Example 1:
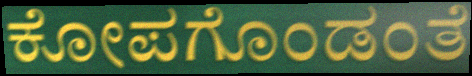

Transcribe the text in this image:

ಕೋಪಗೊಂಡಂತೆ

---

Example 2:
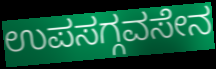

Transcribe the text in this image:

ಉಪಸಗ್ಗವಸೇನ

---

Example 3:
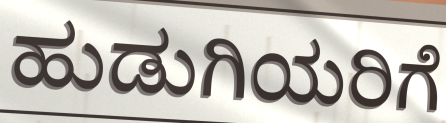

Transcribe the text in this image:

ಹುಡುಗಿಯರಿಗೆ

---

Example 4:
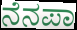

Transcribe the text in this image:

ನೆನಪಾ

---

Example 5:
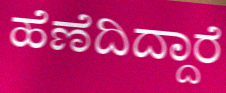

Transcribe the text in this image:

ಹೆಣೆದಿದ್ದಾರೆ